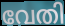
വേതി